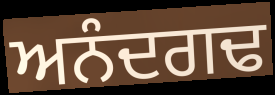
ਅਨੰਦਗਢ